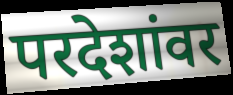
परदेशांवर